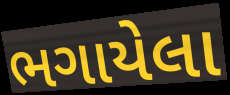
ભગાયેલા